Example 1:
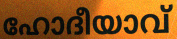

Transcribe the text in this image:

ഹോദീയാവ്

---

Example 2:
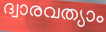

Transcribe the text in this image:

ദ്വാരവത്യാം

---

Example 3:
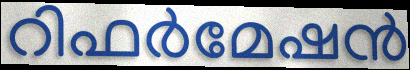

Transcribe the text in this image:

റിഫർമേഷൻ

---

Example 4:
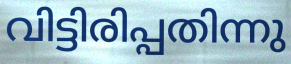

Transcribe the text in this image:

വിട്ടിരിപ്പതിന്നു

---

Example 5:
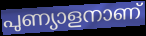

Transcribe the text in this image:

പുണ്യാളനാണ്